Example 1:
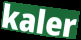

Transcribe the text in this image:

kaler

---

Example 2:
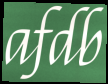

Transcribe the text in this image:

afdb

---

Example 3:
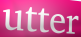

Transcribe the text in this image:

utter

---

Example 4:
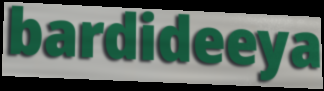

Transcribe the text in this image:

bardideeya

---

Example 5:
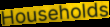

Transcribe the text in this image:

Households